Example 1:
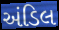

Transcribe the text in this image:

અંડિલ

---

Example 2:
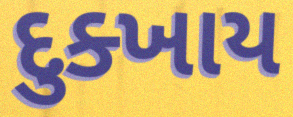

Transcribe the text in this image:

દુક્ખાય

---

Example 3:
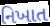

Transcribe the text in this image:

નિખાત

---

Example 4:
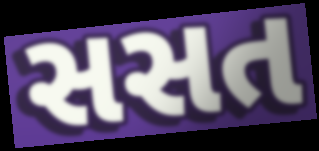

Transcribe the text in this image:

સસત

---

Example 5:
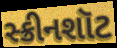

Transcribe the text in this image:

સ્ક્રીનશૉટ